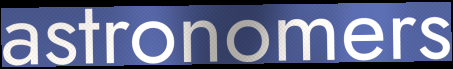
astronomers